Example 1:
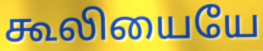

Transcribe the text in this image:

கூலியையே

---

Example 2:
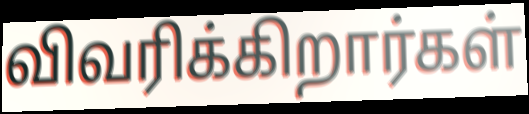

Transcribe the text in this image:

விவரிக்கிறார்கள்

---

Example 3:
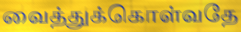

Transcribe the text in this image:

வைத்துக்கொள்வதே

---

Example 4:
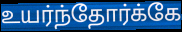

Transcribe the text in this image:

உயர்ந்தோர்க்கே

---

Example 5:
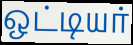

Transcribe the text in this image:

ஒட்டியர்